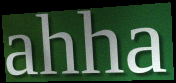
ahha